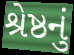
શ્રેષ્ઠનું